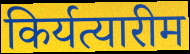
किर्यत्यारीम